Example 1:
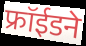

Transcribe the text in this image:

फ्रॉईडने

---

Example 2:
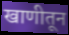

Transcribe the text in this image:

खाणीतून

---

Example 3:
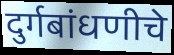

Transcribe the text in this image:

दुर्गबांधणीचे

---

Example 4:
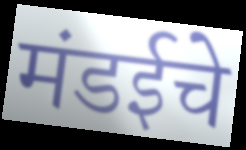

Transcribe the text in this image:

मंडईचे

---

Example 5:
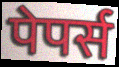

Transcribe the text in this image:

पेपर्स